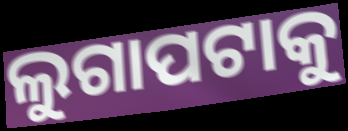
ଲୁଗାପଟାକୁ